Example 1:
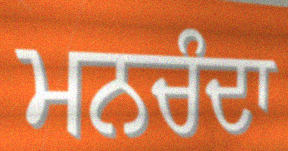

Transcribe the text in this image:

ਮਨਚੰਦਾ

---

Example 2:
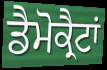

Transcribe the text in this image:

ਡੈਮੋਕ੍ਰੈਟਾਂ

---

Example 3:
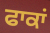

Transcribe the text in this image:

ਫਾਕਾਂ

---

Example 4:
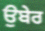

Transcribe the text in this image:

ਉਬੇਰ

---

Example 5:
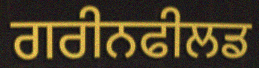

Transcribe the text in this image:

ਗਰੀਨਫੀਲਡ